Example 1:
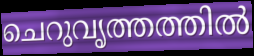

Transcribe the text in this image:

ചെറുവൃത്തത്തിൽ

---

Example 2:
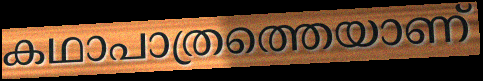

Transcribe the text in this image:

കഥാപാത്രത്തെയാണ്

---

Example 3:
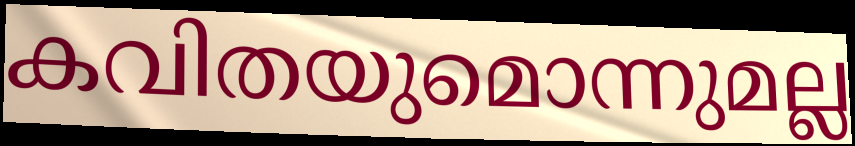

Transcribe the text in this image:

കവിതയുമൊന്നുമല്ല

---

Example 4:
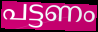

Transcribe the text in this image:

പട്ടണം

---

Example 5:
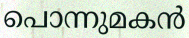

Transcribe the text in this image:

പൊന്നുമകൻ